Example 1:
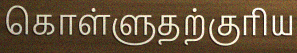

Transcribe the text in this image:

கொள்ளுதற்குரிய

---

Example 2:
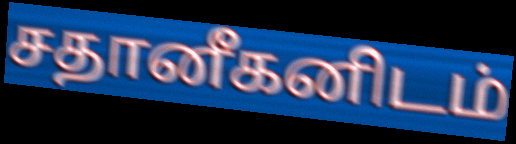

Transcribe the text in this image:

சதானீகனிடம்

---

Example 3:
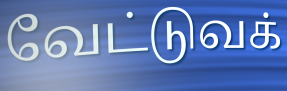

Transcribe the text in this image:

வேட்டுவக்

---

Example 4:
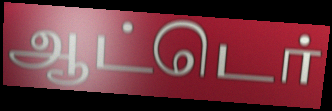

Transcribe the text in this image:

ஆட்டெர்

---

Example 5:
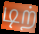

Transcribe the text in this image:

டிற்